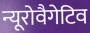
न्यूरोवैगेटिव